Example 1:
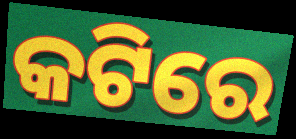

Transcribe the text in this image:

କଟିରେ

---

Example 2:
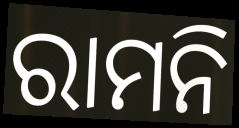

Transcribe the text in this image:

ରାମନି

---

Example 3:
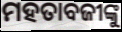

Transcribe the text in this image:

ମହତାବଜୀଙ୍କୁ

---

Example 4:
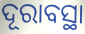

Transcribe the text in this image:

ଦୂରାବସ୍ଥା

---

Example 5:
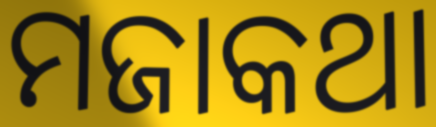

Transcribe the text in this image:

ମଜାକଥା